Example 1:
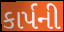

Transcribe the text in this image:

કાર્પની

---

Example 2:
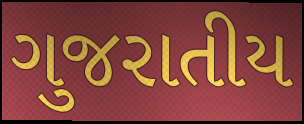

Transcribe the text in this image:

ગુજરાતીય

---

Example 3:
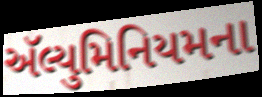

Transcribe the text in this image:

ઍલ્યુમિનિયમના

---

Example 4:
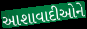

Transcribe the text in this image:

આશાવાદીઓને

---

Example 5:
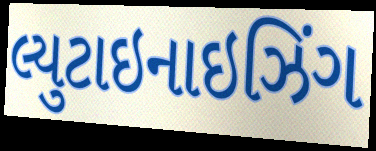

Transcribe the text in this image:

લ્યુટાઇનાઇઝિંગ